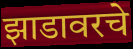
झाडावरचे